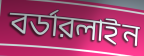
বর্ডারলাইন